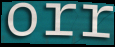
orr